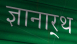
ज्ञानार्थ